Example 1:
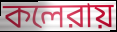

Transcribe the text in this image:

কলেরায়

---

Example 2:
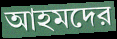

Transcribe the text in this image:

আহমদের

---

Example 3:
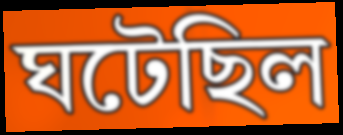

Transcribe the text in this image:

ঘটেছিল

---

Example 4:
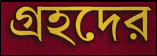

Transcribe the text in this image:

গ্রহদের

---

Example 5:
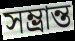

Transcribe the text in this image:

সম্ভ্রান্ত